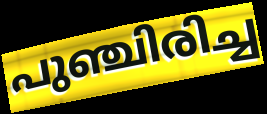
പുഞ്ചിരിച്ച